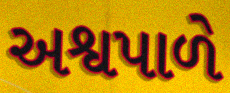
અશ્વપાળે